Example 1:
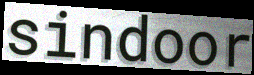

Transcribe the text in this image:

sindoor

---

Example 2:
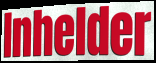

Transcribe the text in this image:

Inhelder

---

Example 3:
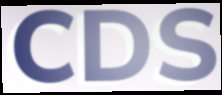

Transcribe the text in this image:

CDS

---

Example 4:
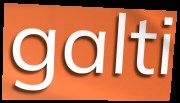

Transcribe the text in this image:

galti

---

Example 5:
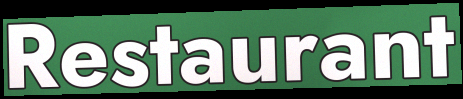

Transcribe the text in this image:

Restaurant